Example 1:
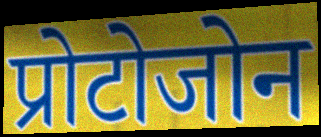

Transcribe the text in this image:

प्रोटोजोन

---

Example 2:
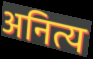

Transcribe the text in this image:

अनित्य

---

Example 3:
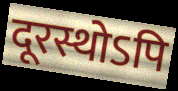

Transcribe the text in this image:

दूरस्थोऽपि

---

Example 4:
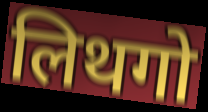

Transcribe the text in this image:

लिथगो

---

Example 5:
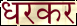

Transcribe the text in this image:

धरकर